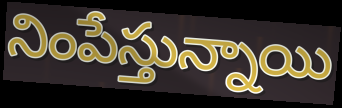
నింపేస్తున్నాయి